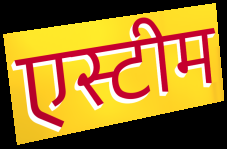
एस्टीम